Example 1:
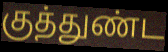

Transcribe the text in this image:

குத்துண்ட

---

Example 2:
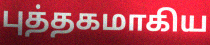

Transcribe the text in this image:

புத்தகமாகிய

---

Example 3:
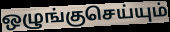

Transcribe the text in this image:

ஒழுங்குசெய்யும்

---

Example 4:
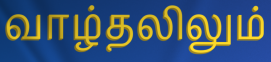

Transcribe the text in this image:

வாழ்தலிலும்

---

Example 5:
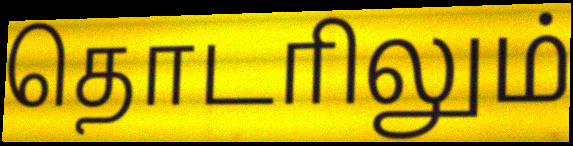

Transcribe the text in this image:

தொடரிலும்